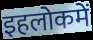
इहलोकमें